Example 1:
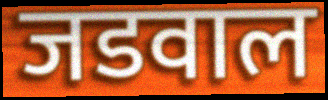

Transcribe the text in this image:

जडवाल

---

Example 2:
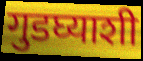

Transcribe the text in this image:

गुडघ्याशी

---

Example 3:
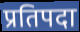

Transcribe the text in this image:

प्रतिपदा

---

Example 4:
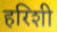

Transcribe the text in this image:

हरिशी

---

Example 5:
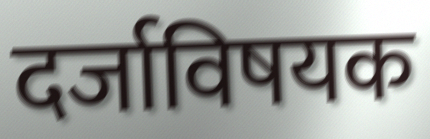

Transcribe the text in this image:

दर्जाविषयक